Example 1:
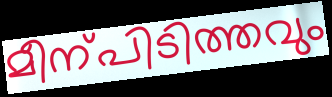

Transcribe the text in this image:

മീന്പിടിത്തവും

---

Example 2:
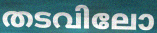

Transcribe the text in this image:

തടവിലോ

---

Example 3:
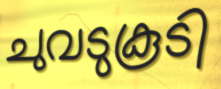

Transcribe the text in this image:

ചുവടുകൂടി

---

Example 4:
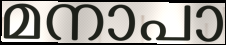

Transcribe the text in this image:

മനാപാ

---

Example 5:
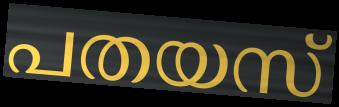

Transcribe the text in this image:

പതയസ്